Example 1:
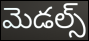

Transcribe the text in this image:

మెడల్స్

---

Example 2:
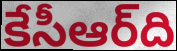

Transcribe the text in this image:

కేసీఆర్‌ది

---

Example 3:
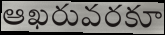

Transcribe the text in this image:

ఆఖరువరకూ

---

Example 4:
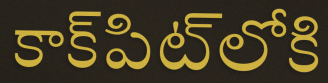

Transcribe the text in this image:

కాక్‌పిట్‌లోకి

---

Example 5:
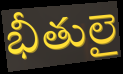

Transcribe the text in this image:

భీతులై